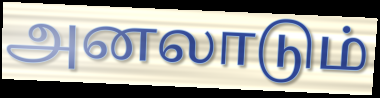
அனலாடும்